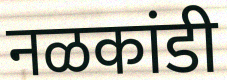
नळकांडी